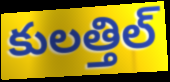
కులత్తిల్